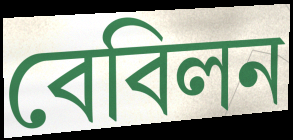
বেবিলন